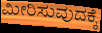
ಮೀರಿಸುವುದಕ್ಕೆ